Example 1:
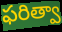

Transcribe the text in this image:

ఫరిత్వా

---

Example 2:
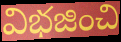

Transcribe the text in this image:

విభజించి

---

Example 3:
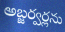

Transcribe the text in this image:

అబ్జర్వర్లను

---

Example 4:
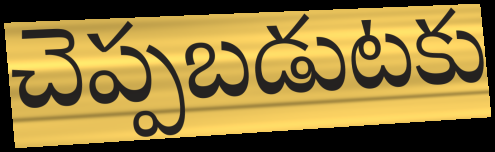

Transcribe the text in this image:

చెప్పబడుటకు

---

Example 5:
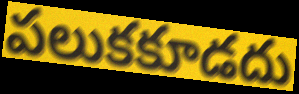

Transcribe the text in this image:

పలుకకూడదు